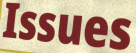
Issues